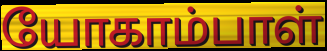
யோகாம்பாள்